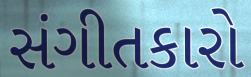
સંગીતકારો